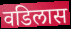
वडिलास